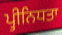
ਪ੍ਤੀਨਿਧਤਾ